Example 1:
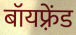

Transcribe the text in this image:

बॉयफ़्रेंड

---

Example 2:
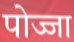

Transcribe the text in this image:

पोज्जा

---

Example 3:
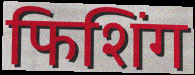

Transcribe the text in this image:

फिशिंग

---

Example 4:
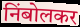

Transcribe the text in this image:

निंबोलकर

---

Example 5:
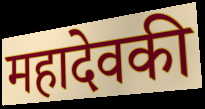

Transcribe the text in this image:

महादेवकी